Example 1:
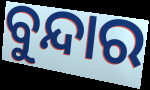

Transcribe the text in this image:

ବୁନ୍ଦାର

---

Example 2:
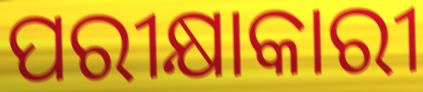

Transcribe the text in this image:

ପରୀକ୍ଷାକାରୀ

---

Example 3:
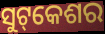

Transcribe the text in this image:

ସୁଟ୍‌କେଶର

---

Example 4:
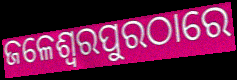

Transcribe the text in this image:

ଜଳେଶ୍ୱରପୁରଠାରେ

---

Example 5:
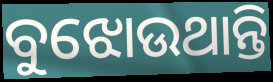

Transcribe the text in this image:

ବୁଝୋଉଥାନ୍ତି